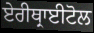
ਏਰੀਥ੍ਰਾਈਟੋਲ